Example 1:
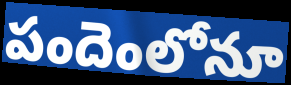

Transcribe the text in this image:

పందెంలోనూ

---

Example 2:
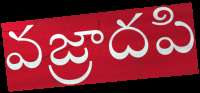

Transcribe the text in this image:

వజ్రాదపి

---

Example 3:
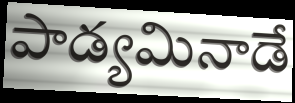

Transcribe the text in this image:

పాడ్యమినాడే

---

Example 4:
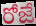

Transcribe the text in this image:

రోజే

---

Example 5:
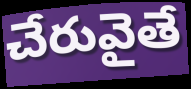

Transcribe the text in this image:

చేరువైతే